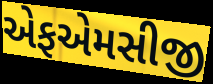
એફએમસીજી